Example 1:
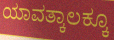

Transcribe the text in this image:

ಯಾವತ್ಕಾಲಕ್ಕೂ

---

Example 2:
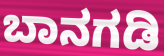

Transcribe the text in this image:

ಬಾನಗಡಿ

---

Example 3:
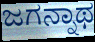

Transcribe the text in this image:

ಜಗನ್ನಾಥ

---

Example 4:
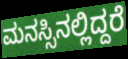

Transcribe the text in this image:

ಮನಸ್ಸಿನಲ್ಲಿದ್ದರೆ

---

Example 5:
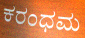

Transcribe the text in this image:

ಕರಂಧಮ